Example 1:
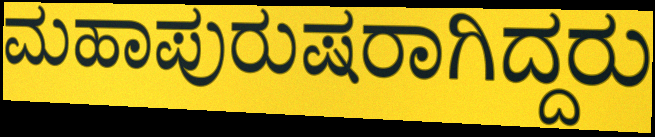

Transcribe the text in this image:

ಮಹಾಪುರುಷರಾಗಿದ್ದರು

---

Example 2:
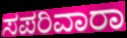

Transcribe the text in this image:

ಸಪರಿವಾರಾ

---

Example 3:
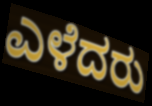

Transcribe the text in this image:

ಎಳೆದರು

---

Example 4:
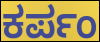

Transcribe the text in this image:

ಕರ್ಪಂ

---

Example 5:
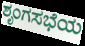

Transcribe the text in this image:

ಶೃಂಗಸಭೆಯ